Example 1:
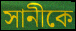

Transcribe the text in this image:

সানীকে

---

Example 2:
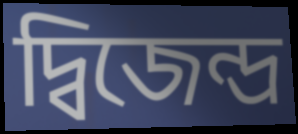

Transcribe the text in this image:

দ্বিজেন্দ্র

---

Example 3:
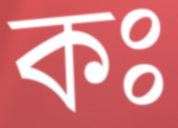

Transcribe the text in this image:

কঃ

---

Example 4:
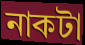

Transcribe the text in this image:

নাকটা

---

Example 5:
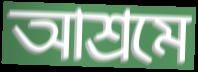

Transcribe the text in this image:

আশ্রমে